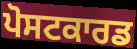
ਪੋਸਟਕਾਰਡ